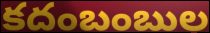
కదంబంబుల